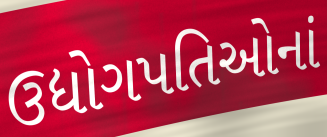
ઉદ્યોગપતિઓનાં